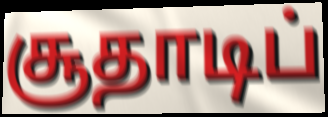
சூதாடிப்